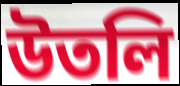
উতলি